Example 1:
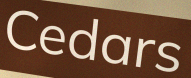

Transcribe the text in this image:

Cedars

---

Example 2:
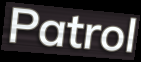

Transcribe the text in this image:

Patrol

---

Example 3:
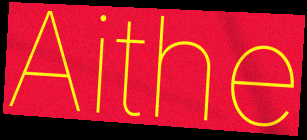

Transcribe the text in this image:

Aithe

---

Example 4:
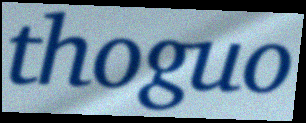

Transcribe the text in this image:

thoguo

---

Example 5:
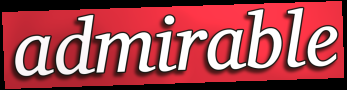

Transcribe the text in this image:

admirable